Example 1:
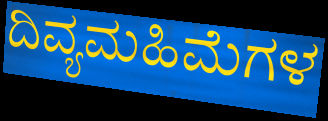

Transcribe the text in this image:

ದಿವ್ಯಮಹಿಮೆಗಳ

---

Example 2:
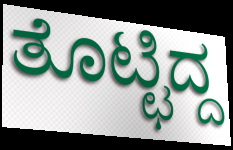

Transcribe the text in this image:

ತೊಟ್ಟಿದ್ದ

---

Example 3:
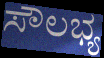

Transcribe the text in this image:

ಸೌಲಭ್ಯ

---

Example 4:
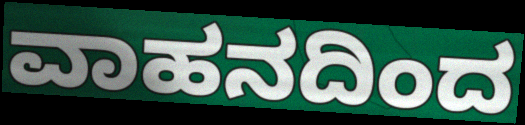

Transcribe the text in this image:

ವಾಹನದಿಂದ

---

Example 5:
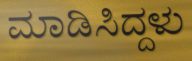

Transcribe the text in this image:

ಮಾಡಿಸಿದ್ದಳು